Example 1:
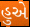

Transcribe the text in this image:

હુએ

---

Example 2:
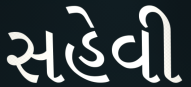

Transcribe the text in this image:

સહેવી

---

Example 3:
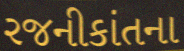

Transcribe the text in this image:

રજનીકાંતના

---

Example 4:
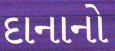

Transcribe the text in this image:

દાનાનો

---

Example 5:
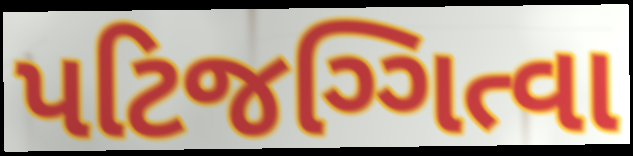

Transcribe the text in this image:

પટિજગ્ગિત્વા